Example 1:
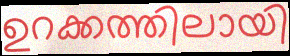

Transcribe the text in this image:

ഉറക്കത്തിലായി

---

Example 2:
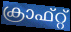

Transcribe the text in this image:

ക്രാഫ്റ്റ്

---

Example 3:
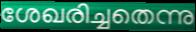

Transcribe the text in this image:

ശേഖരിച്ചതെന്നു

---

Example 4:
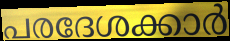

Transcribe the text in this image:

പരദേശക്കാർ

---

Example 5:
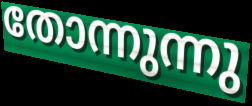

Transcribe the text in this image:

തോന്നുന്നു